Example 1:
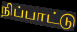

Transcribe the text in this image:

நிப்பாட்டு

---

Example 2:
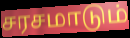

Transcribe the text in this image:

சரசமாடும்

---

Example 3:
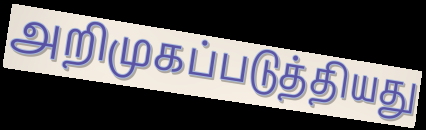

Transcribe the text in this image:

அறிமுகப்படுத்தியது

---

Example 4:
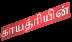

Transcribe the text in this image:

காயத்ரியின்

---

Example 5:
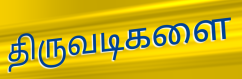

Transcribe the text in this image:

திருவடிகளை